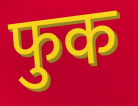
फुक